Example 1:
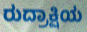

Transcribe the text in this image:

ರುದ್ರಾಕ್ಷಿಯ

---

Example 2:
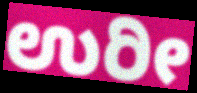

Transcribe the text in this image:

ಉರೀ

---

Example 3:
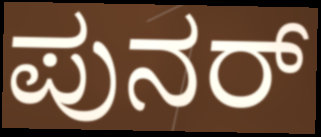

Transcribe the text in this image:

ಪುನರ್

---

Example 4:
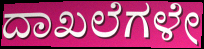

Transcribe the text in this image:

ದಾಖಲೆಗಳೇ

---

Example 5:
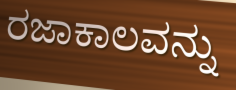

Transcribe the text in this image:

ರಜಾಕಾಲವನ್ನು